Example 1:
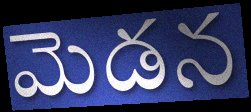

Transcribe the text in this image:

మెడన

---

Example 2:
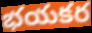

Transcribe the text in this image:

భయకర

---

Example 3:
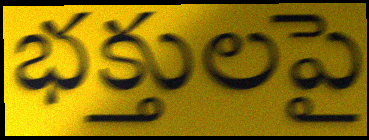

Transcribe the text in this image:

భక్తులపై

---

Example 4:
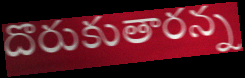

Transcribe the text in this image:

దొరుకుతారన్న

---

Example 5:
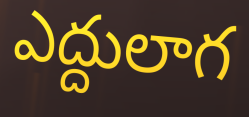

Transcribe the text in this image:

ఎద్దులాగ